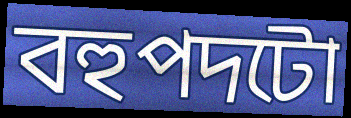
বহুপদটো